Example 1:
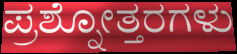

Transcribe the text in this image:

ಪ್ರಶ್ನೋತ್ತರಗಳು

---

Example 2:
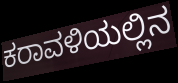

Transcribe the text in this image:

ಕರಾವಳಿಯಲ್ಲಿನ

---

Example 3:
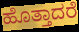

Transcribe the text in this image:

ಹೊತ್ತಾದರೆ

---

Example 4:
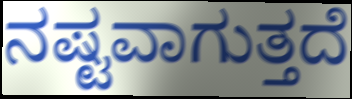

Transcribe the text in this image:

ನಷ್ಟವಾಗುತ್ತದೆ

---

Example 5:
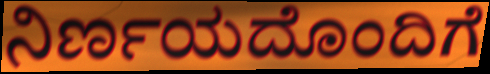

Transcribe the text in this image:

ನಿರ್ಣಯದೊಂದಿಗೆ